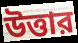
উত্তার